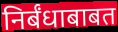
निर्बंधाबाबत